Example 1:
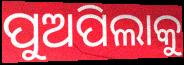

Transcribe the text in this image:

ପୁଅପିଲାକୁ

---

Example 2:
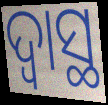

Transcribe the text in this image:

ଦ୍ୱାସ୍ଥ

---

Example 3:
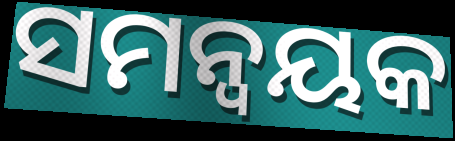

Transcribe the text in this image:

ସମନ୍ୱୟକ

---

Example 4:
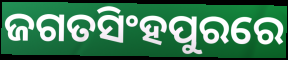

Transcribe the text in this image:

ଜଗତସିଂହପୁରରେ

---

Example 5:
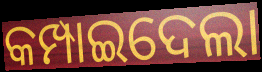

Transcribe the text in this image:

କମ୍ପାଇଦେଲା